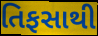
તિફસાથી